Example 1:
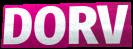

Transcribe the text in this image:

DORV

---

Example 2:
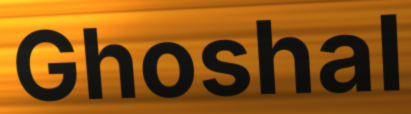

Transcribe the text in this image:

Ghoshal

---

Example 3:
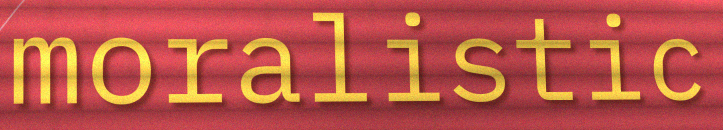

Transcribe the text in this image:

moralistic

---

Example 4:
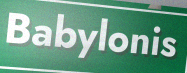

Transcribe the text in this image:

Babylonis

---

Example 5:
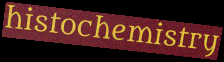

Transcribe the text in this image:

histochemistry